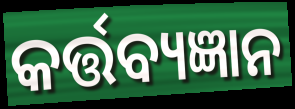
କର୍ତ୍ତବ୍ୟଜ୍ଞାନ